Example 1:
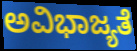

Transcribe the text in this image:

ಅವಿಭಾಜ್ಯತೆ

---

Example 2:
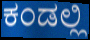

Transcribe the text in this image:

ಕಂಡಲ್ಲಿ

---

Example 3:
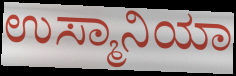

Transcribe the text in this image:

ಉಸ್ಮಾನಿಯಾ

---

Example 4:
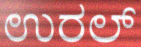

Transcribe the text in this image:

ಉರಲ್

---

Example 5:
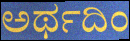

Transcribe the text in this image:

ಅರ್ಥದಿಂ